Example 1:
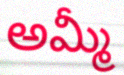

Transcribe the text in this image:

అమ్మీ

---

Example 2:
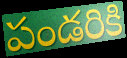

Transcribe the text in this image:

పండరికి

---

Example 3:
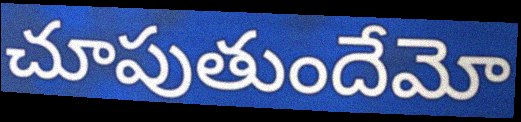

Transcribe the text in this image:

చూపుతుందేమో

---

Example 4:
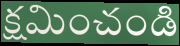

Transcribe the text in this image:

క్షమించండి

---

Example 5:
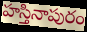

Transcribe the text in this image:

హస్తినాపురం